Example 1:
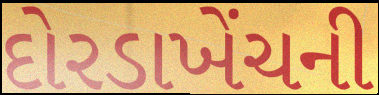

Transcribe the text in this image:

દોરડાખેંચની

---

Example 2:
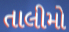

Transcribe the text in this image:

તાલીમો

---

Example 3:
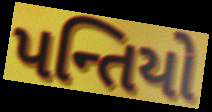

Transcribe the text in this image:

પન્તિયો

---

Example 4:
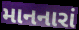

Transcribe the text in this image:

માનનારાં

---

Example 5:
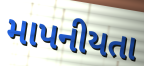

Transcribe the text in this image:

માપનીયતા